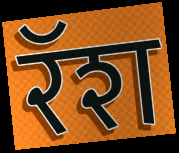
रॅश